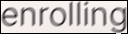
enrolling